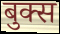
बुक्स